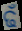
ଢଁ